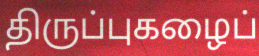
திருப்புகழைப்